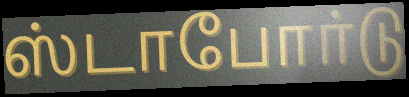
ஸ்டாபோர்டு